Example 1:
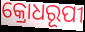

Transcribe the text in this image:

କ୍ରୋଧରୂପୀ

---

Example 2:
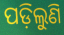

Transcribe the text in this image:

ପଡ଼ିଲୁଣି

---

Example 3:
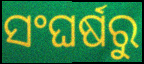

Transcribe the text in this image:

ସଂଘର୍ଷରୁ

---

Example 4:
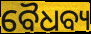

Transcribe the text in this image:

ବୈଧବ୍ୟ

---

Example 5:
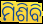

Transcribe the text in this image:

ମିଶିବି